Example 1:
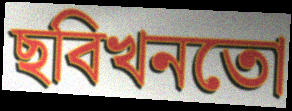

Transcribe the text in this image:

ছবিখনতো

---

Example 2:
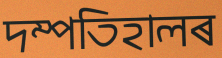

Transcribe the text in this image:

দম্পতিহালৰ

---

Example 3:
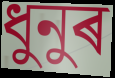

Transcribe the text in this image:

ধুনুৰ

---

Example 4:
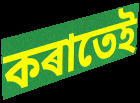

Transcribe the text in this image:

কৰাতেই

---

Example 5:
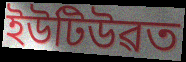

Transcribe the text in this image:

ইউটিউৱত